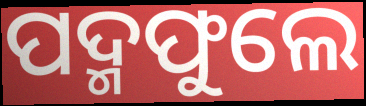
ପଦ୍ମଫୁଲେ